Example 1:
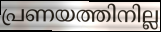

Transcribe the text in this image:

പ്രണയത്തിനില്ല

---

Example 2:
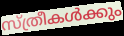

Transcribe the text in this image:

സ്ത്രീകൾക്കും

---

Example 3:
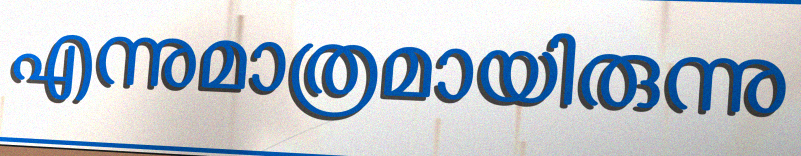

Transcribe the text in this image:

എന്നുമാത്രമായിരുന്നു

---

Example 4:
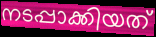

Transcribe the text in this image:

നടപ്പാക്കിയത്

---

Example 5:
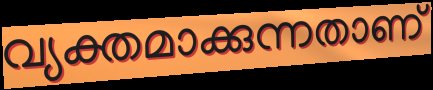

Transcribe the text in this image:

വ്യക്തമാക്കുന്നതാണ്